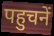
पहुचनें